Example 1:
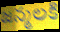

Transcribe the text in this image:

జన్మలకి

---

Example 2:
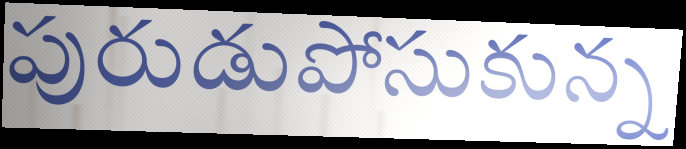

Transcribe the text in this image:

పురుడుపోసుకున్న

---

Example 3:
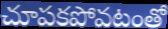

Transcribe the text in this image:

చూపకపోవటంతో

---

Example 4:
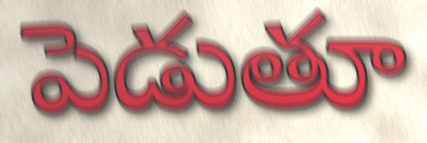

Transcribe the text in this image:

పెడుతూ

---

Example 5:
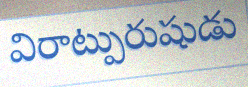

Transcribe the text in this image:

విరాట్పురుషుడు